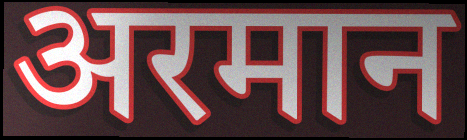
अरमान